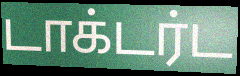
டாக்டர்ட